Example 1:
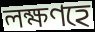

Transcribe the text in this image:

লক্ষণহে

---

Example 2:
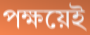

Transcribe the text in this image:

পক্ষয়েই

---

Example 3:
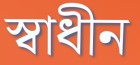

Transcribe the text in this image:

স্ৱাধীন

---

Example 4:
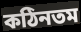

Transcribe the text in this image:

কঠিনতম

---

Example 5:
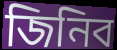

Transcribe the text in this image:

জিনিব